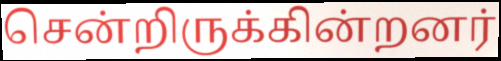
சென்றிருக்கின்றனர்